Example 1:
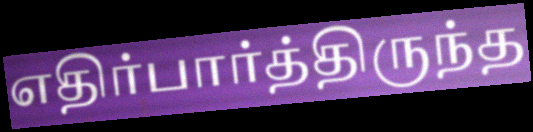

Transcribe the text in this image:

எதிர்பார்த்திருந்த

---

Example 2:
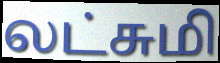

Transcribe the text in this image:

லட்சுமி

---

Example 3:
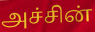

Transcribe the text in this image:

அச்சின்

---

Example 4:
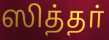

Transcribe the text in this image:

ஸித்தர்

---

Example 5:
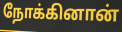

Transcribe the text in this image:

நோக்கினான்